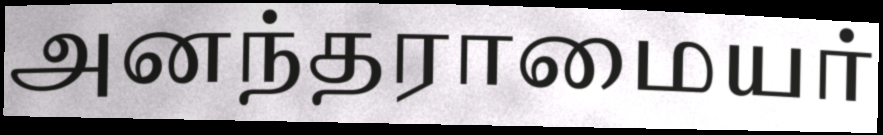
அனந்தராமையர்